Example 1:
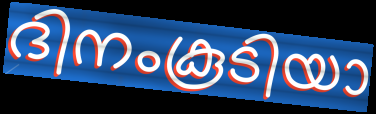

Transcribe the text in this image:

ദിനംകൂടിയാ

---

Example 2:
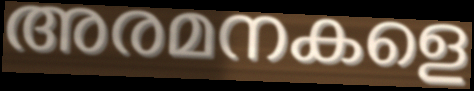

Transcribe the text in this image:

അരമനകളെ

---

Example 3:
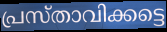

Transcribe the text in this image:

പ്രസ്താവിക്കട്ടെ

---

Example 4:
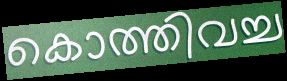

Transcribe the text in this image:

കൊത്തിവച്ച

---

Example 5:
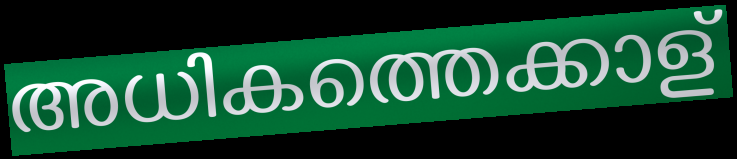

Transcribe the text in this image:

അധികത്തെക്കാള്